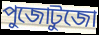
পুজোটুজো